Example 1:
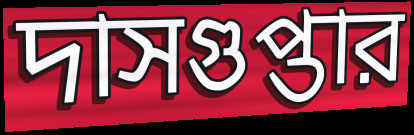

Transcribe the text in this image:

দাসগুপ্তার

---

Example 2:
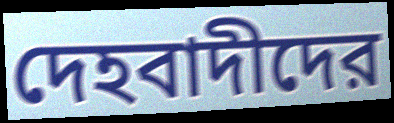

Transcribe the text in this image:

দেহবাদীদের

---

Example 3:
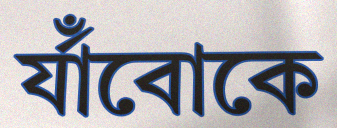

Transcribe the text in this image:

র্যাঁবোকে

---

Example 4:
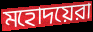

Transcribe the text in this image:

মহোদয়েরা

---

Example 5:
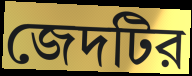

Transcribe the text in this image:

জেদটির